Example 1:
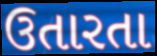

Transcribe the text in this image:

ઉતારતા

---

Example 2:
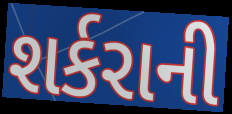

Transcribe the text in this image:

શર્કરાની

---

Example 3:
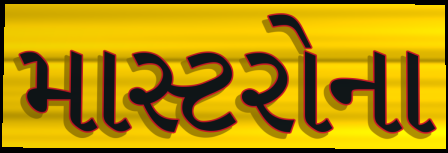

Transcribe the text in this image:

માસ્ટરોના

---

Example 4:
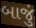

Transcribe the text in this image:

બાજું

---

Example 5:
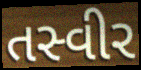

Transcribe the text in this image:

તસ્વીર